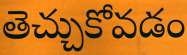
తెచ్చుకోవడం